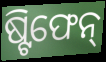
ଷ୍ଟିଫେନ୍